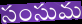
సంసుమ